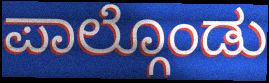
ಪಾಲ್ಗೊಂಡು